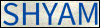
SHYAM